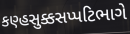
કણ્હસુક્કસપ્પટિભાગે